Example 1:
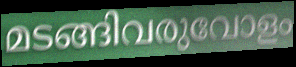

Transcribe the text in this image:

മടങ്ങിവരുവോളം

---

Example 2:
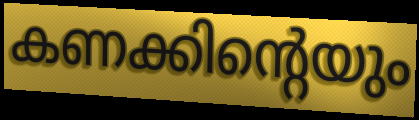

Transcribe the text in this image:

കണക്കിന്റെയും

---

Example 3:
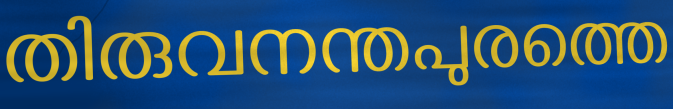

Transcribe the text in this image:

തിരുവനന്തപുരത്തെ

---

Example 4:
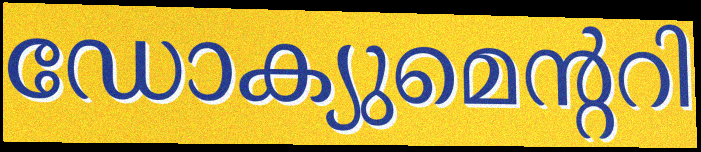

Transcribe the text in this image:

ഡോക്യുമെന്ററി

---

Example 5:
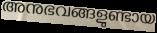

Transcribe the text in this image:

അനുഭവങ്ങളുണ്ടായ